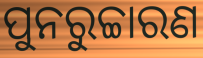
ପୁନରୁଚ୍ଚାରଣ